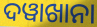
ଦୱାଖାନା